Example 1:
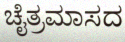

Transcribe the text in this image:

ಚೈತ್ರಮಾಸದ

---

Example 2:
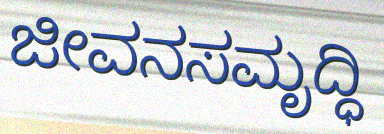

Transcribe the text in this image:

ಜೀವನಸಮೃದ್ಧಿ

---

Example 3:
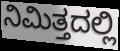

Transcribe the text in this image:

ನಿಮಿತ್ತದಲ್ಲಿ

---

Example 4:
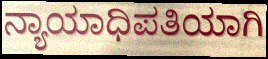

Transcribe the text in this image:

ನ್ಯಾಯಾಧಿಪತಿಯಾಗಿ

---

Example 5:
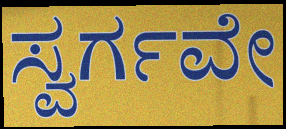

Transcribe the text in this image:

ಸ್ವರ್ಗವೇ